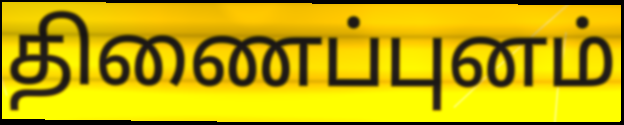
திணைப்புனம்